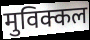
मुविक्कल